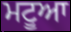
ਮਟੂਆ